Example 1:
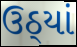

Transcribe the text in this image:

ઉઠ્યાં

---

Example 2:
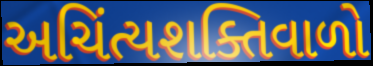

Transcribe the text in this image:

અચિંત્યશક્તિવાળો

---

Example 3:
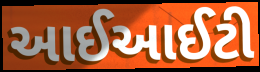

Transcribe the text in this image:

આઈઆઈટી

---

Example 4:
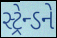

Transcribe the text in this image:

સ્ટ્રેન્ડને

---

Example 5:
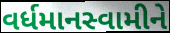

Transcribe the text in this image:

વર્ધમાનસ્વામીને